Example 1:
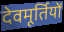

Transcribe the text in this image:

देवमूर्तियों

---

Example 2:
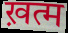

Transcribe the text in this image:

ख़त्‍म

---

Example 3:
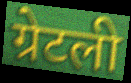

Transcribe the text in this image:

ग्रेटली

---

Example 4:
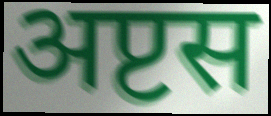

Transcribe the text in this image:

अप्टस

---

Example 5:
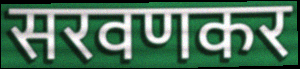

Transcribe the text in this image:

सरवणकर